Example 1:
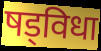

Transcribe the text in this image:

षड्विधा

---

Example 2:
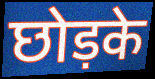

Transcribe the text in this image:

छोड़के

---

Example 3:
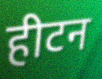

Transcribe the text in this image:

हीटन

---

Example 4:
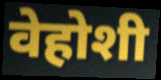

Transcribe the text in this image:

वेहोशी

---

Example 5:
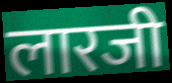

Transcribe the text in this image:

लारजी